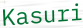
Kasuri